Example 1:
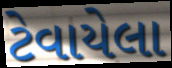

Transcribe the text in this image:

ટેવાયેલા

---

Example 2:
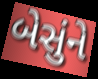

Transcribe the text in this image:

બેસુંને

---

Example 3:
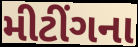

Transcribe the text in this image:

મીટીંગના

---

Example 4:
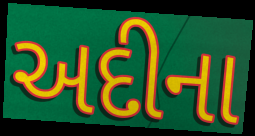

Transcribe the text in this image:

અદીના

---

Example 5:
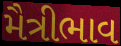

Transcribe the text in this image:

મૈત્રીભાવ